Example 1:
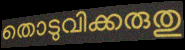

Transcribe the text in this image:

തൊടുവിക്കരുതു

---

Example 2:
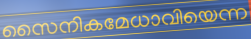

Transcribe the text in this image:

സൈനികമേധാവിയെന്ന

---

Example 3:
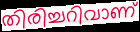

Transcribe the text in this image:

തിരിച്ചറിവാണ്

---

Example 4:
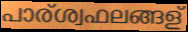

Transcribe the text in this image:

പാര്ശ്വഫലങ്ങള്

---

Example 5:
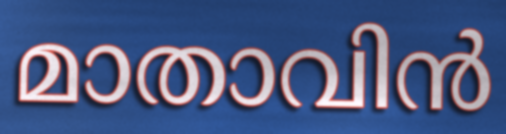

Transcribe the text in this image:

മാതാവിൻ